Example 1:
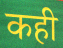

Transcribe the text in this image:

कही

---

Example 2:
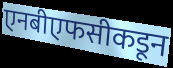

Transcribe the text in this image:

एनबीएफसीकडून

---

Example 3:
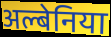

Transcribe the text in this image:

अल्बेनिया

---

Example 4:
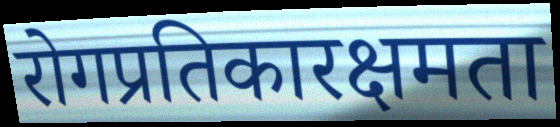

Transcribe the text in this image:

रोगप्रतिकारक्षमता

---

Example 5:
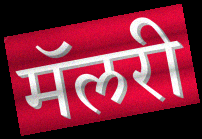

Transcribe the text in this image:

मॅलरी